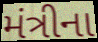
મંત્રીના